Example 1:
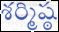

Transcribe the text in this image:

శర్మిష్ఠ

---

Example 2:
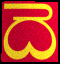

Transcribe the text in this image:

దె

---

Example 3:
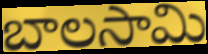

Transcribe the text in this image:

బాలసామి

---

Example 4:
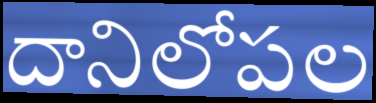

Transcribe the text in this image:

దానిలోపల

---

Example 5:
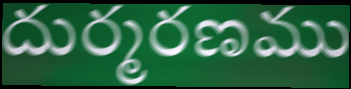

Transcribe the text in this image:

దుర్మరణము